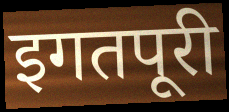
इगतपूरी